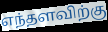
எந்தளவிற்கு